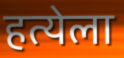
हत्येला